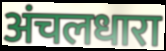
अंचलधारा